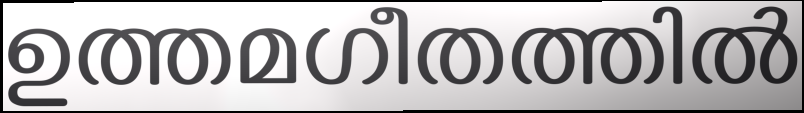
ഉത്തമഗീതത്തിൽ